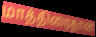
மாத்திரைதான்